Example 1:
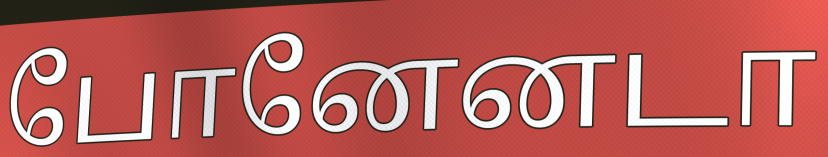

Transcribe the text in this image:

போனேனடா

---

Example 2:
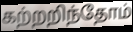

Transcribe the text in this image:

கற்றறிந்தோம்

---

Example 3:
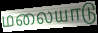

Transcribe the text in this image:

மலையாடு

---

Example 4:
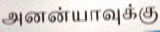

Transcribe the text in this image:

அனன்யாவுக்கு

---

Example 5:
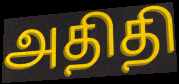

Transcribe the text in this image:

அதிதி